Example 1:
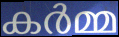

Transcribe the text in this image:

കർമ്മ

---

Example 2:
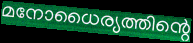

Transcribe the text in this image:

മനോധൈര്യത്തിന്റെ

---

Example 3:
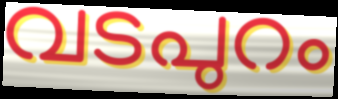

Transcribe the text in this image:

വടപുറം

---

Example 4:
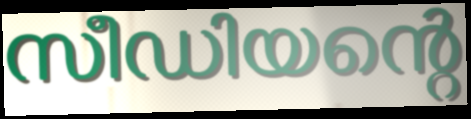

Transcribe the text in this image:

സീഡിയന്റെ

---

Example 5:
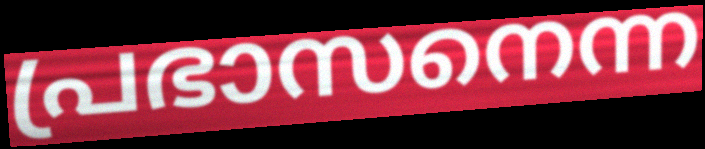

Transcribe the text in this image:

പ്രഭാസനെന്ന